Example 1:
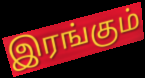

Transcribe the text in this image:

இரங்கும்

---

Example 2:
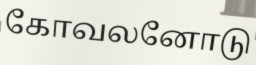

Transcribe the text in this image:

கோவலனோடு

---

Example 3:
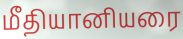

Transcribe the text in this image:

மீதியானியரை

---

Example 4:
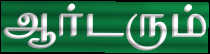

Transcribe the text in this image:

ஆர்டரும்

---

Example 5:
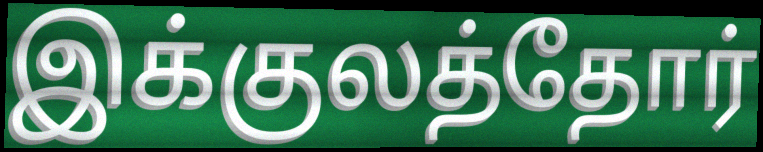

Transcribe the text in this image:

இக்குலத்தோர்